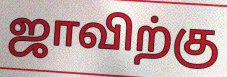
ஜாவிற்கு